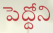
పెద్దోని